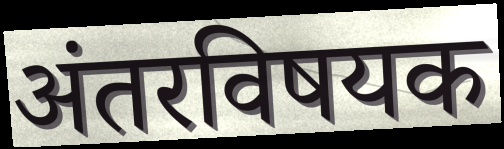
अंतरविषयक